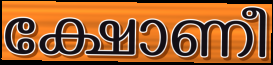
ക്ഷോണീ